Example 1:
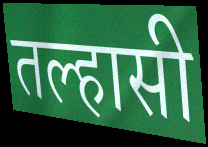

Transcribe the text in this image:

तल्हासी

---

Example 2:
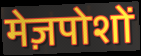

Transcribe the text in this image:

मेज़पोशों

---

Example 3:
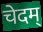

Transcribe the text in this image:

चेदम्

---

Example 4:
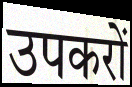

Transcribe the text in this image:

उपकरों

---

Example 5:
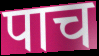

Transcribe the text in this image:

पाच